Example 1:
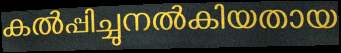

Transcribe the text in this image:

കൽപ്പിച്ചുനൽകിയതായ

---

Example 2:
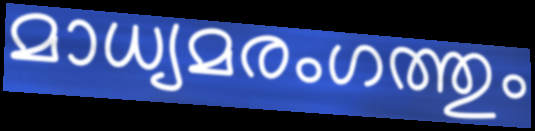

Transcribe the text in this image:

മാധ്യമരംഗത്തും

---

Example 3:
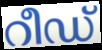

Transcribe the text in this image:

റീഡ്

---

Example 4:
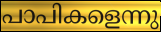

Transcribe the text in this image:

പാപികളെന്നു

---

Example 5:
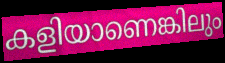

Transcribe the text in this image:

കളിയാണെങ്കിലും